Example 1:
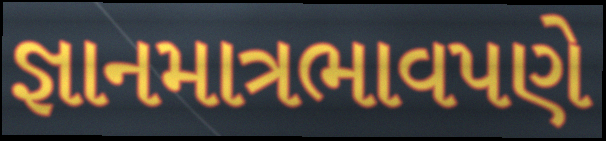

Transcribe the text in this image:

જ્ઞાનમાત્રભાવપણે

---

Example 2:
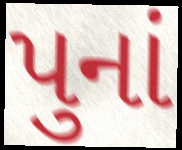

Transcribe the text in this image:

પુનાં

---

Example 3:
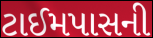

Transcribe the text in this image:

ટાઈમપાસની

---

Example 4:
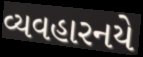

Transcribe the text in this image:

વ્યવહારનયે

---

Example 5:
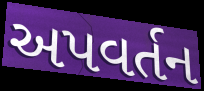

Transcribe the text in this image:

અપવર્તન